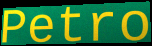
Petro